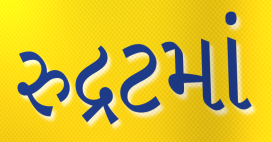
રુદ્રટમાં